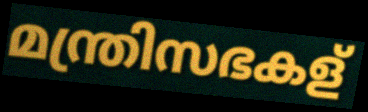
മന്ത്രിസഭകള്